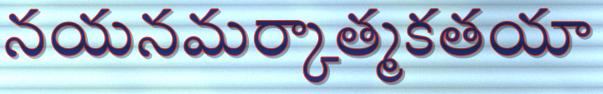
నయనమర్కాత్మకతయా